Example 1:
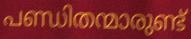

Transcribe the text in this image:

പണ്ഡിതന്മാരുണ്ട്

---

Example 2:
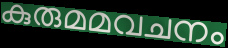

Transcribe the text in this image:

കുരുമമവചനം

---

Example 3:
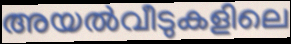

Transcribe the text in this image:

അയൽവീടുകളിലെ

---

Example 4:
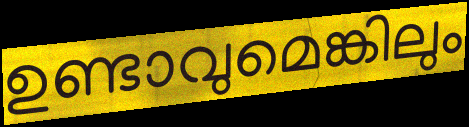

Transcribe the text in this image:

ഉണ്ടാവുമെങ്കിലും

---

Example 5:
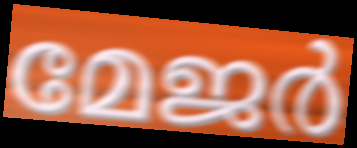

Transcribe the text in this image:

മേജർ